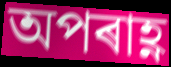
অপৰাহ্ণ